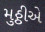
મુઠ્ઠીએ